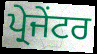
ਪ੍ਰੇਜੇਂਟਰ